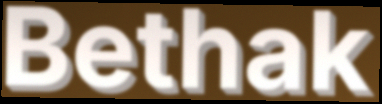
Bethak